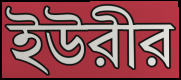
ইউরীর